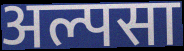
अल्पसा